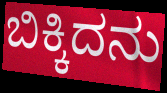
ಬಿಕ್ಕಿದನು